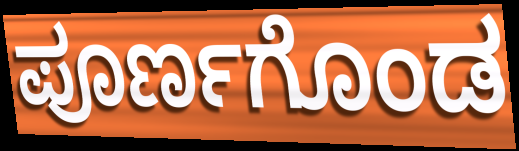
ಪೂರ್ಣಗೊಂಡ